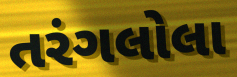
તરંગલોલા